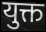
युक्त